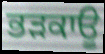
ਭੜਕਾਊ